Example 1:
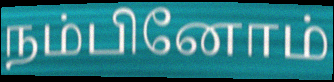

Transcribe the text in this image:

நம்பினோம்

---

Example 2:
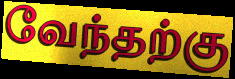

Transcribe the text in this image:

வேந்தற்கு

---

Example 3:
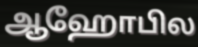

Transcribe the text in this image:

ஆஹோபில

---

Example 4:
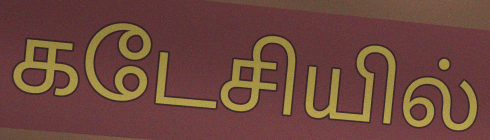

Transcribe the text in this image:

கடேசியில்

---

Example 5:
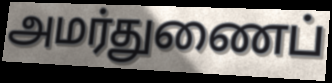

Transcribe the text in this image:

அமர்துணைப்